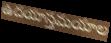
ఉదయాస్తమయాల